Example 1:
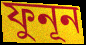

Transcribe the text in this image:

ফুনূন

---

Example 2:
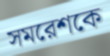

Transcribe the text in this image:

সমরেশকে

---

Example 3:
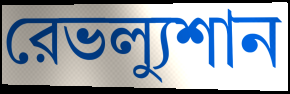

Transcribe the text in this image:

রেভল্যুশান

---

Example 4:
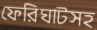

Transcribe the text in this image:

ফেরিঘাটসহ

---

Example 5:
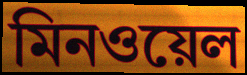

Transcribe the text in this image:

মিনওয়েল